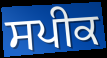
ਸਪੀਕ